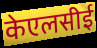
केएलसीई